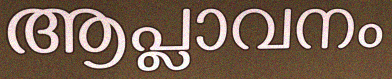
ആപ്ലാവനം